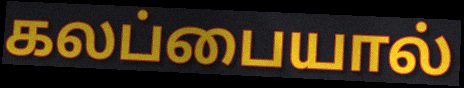
கலப்பையால்